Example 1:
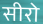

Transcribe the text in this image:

सीरो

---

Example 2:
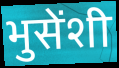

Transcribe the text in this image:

भुसेंशी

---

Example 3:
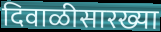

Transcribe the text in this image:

दिवाळीसारख्या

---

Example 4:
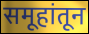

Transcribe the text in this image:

समूहांतून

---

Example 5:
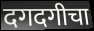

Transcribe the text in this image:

दगदगीचा